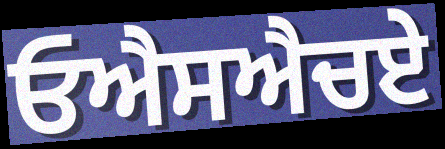
ਓਐਸਐਚਏ